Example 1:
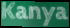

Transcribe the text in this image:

Kanya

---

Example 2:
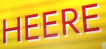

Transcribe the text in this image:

HEERE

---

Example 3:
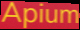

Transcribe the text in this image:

Apium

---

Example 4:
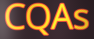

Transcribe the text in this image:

CQAs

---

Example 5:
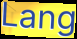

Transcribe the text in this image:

Lang